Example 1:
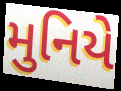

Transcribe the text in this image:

મુનિયે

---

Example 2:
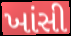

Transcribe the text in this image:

ખાંસી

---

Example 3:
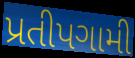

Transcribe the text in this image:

પ્રતીપગામી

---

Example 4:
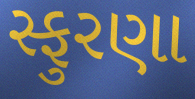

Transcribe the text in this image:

સ્ફુરણા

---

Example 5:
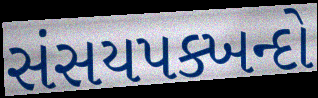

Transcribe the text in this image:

સંસયપક્ખન્દો